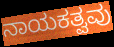
ನಾಯಕತ್ವವು